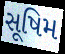
સૂષિમ